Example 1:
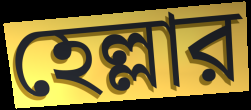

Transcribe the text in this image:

হেল্লার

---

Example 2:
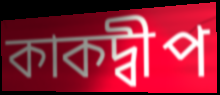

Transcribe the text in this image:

কাকদ্বীপ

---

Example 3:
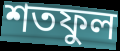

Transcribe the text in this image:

শতফুল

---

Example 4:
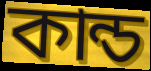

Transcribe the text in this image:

কান্ড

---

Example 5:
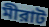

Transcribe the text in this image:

মীরাট